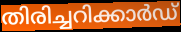
തിരിച്ചറിക്കാർഡ്